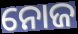
ନୋଜ